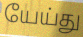
யேய்து